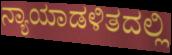
ನ್ಯಾಯಾಡಳಿತದಲ್ಲಿ